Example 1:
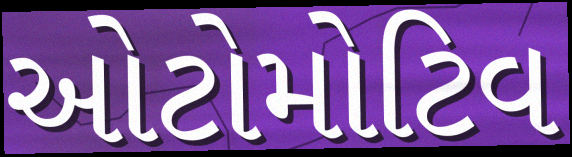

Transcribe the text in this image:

ઓટોમોટિવ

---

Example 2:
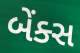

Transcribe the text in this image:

બેંક્સ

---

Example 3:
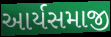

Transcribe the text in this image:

આર્યસમાજી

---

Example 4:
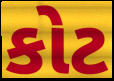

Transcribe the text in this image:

કોટ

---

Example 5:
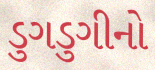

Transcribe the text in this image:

ડુગડુગીનો